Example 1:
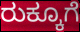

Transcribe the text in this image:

ರುಕ್ಕೂಗೆ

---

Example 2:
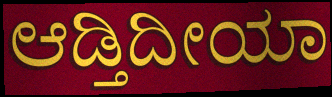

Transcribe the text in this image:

ಆಡ್ತಿದೀಯಾ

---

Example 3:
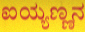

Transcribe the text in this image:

ಐಯ್ಯಣ್ಣನ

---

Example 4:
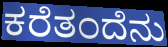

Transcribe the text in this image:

ಕರೆತಂದೆನು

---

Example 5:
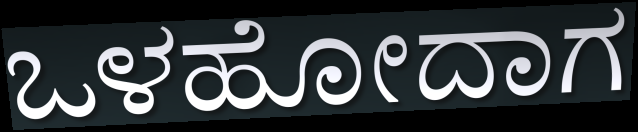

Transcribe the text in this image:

ಒಳಹೋದಾಗ